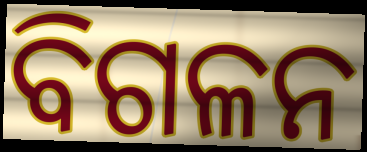
ବିଗଳନ